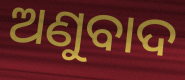
ଅଣୁବାଦ